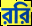
ররি